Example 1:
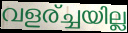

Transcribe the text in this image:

വളര്ച്ചയില്ല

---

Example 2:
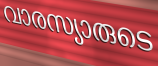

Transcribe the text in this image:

വാരസ്യാരുടെ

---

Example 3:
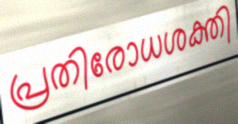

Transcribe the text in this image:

പ്രതിരോധശക്തി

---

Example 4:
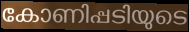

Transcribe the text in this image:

കോണിപ്പടിയുടെ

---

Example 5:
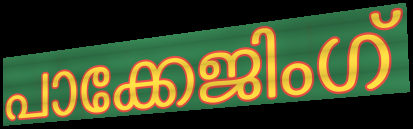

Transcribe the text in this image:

പാക്കേജിംഗ്